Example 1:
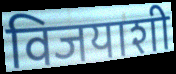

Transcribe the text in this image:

विजयाशी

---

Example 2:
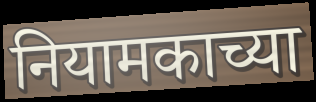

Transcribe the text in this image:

नियामकाच्या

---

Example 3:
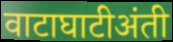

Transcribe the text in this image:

वाटाघाटीअंती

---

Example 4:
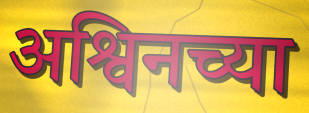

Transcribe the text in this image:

अश्विनच्या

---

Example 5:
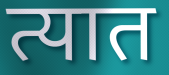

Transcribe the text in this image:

त्यात